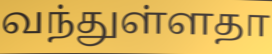
வந்துள்ளதா